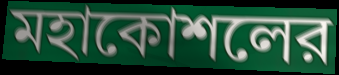
মহাকোশলের